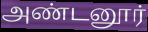
அண்டனூர்